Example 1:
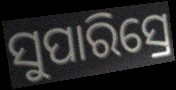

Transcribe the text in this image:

ସୁପାରିସ୍ରେ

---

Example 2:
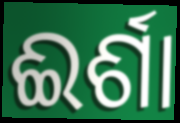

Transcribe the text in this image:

ଈର୍ଶା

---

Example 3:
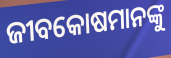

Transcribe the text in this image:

ଜୀବକୋଷମାନଙ୍କୁ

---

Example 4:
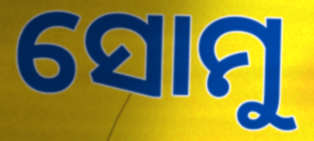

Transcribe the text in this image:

ସୋମୁ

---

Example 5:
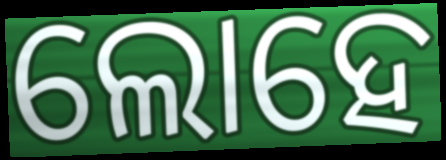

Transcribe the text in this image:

ଲୋହେ